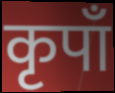
कृपाँ